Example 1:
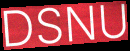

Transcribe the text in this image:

DSNU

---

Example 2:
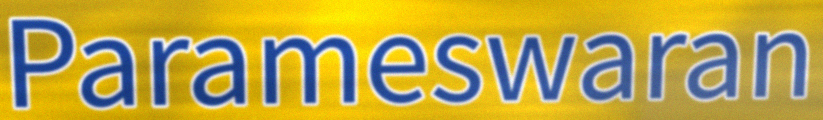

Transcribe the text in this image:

Parameswaran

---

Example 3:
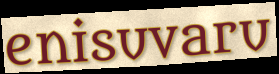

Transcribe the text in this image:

enisuvaru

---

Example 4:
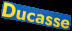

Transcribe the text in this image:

Ducasse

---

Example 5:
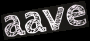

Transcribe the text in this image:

aave